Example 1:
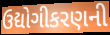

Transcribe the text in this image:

ઉદ્યોગીકરણની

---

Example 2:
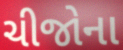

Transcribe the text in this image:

ચીજોના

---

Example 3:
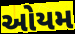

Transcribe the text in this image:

ઓયમ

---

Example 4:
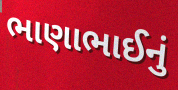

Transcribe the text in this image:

ભાણાભાઈનું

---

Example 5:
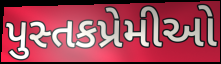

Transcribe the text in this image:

પુસ્તકપ્રેમીઓ